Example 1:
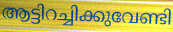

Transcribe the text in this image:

ആട്ടിറച്ചിക്കുവേണ്ടി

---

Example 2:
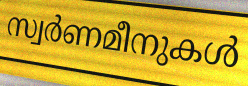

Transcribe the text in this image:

സ്വർണമീനുകൾ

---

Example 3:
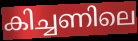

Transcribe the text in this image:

കിച്ചണിലെ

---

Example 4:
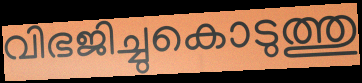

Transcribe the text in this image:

വിഭജിച്ചുകൊടുത്തു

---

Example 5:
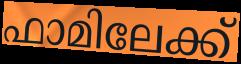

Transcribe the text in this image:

ഫാമിലേക്ക്